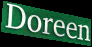
Doreen